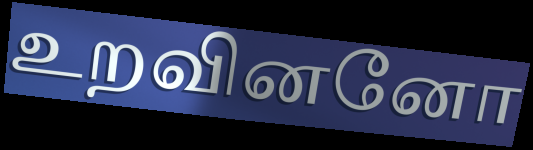
உறவினனோ